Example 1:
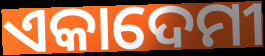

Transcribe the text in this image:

ଏକାଦେମୀ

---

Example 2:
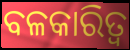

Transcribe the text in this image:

ବଳକାରିତ୍ୱ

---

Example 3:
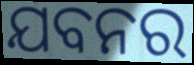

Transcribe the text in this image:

ଯବନର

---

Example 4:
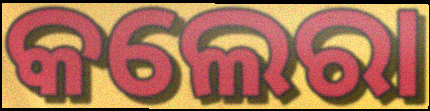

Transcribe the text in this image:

କଲେରା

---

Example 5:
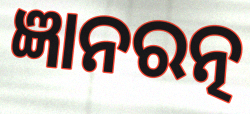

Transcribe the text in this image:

ଜ୍ଞାନରତ୍ନ